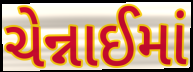
ચેન્નાઈમાં